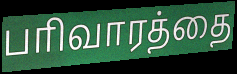
பரிவாரத்தை